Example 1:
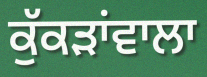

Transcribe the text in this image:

ਕੁੱਕੜਾਂਵਾਲਾ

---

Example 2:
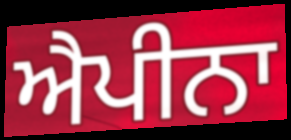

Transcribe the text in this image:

ਐਪੀਨਾ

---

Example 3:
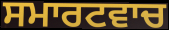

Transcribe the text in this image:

ਸਮਾਰਟਵਾਚ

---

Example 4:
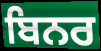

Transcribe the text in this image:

ਬਿਨਰ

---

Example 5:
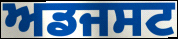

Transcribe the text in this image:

ਅਡਜਸਟ